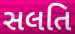
સલતિ